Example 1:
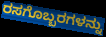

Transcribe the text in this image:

ರಸಗೊಬ್ಬರಗಳನ್ನು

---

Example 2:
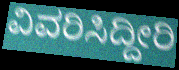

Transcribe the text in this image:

ವಿವರಿಸಿದ್ದೀರಿ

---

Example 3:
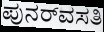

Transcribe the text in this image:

ಪುನರ್‌ವಸತಿ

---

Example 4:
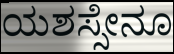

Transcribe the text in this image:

ಯಶಸ್ಸೇನೂ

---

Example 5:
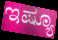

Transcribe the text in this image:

ಇಷ್ಯೂ